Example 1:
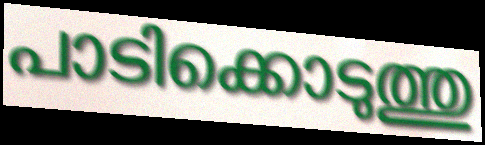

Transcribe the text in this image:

പാടിക്കൊടുത്തു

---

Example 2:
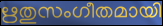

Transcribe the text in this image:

ഋതുസംഗീതമായി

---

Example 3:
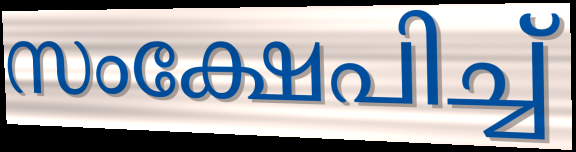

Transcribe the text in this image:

സംക്ഷേപിച്ച്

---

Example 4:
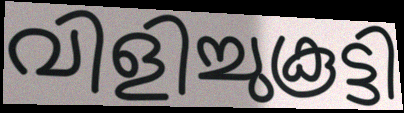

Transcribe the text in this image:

വിളിച്ചുകൂട്ടി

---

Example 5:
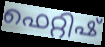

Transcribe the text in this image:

ഫെറ്റിഷ്